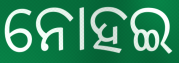
ନୋହଇ